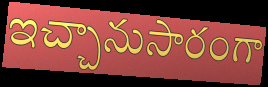
ఇచ్చానుసారంగా